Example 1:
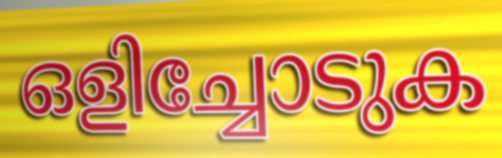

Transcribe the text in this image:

ഒളിച്ചോടുക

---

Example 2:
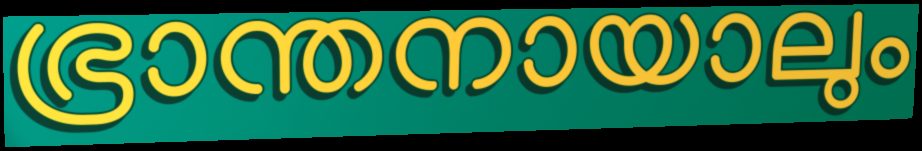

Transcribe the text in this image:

ഭ്രാന്തനായാലും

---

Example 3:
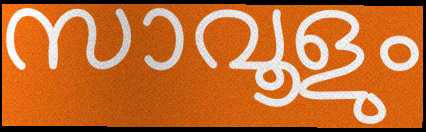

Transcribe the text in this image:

സാവൂളും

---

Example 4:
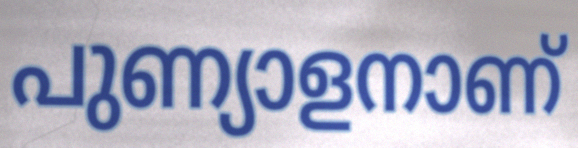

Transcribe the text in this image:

പുണ്യാളനാണ്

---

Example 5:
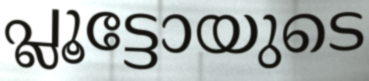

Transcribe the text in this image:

പ്ലൂട്ടോയുടെ